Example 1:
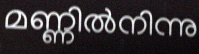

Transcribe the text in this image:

മണ്ണിൽനിന്നു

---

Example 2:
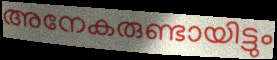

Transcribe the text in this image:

അനേകരുണ്ടായിട്ടും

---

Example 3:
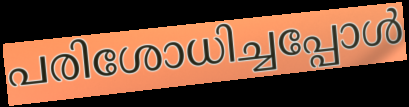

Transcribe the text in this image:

പരിശോധിച്ചപ്പോൾ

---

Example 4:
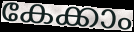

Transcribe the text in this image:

കേക്കാം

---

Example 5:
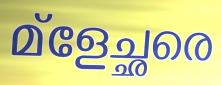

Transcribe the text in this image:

മ്ളേച്ഛരെ